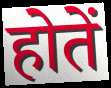
होतें